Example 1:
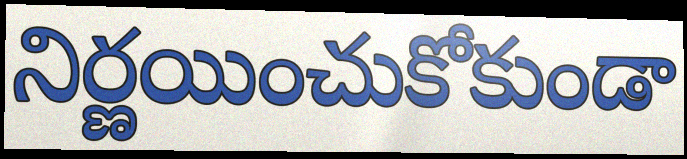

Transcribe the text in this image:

నిర్ణయించుకోకుండా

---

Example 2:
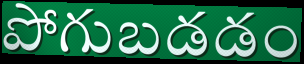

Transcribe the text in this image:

పోగుబడడం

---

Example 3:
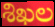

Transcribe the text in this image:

శిఖల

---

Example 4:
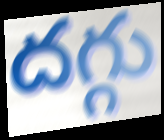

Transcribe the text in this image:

దగ్గు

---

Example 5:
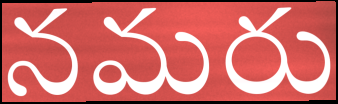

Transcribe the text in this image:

నమరు